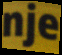
nje